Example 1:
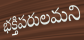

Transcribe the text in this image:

భక్తిపరులమని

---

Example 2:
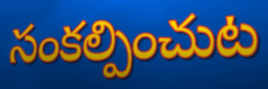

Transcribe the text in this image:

సంకల్పించుట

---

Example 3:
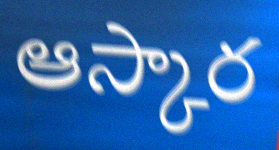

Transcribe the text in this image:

ఆస్కార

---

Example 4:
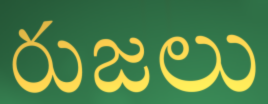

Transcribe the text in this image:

రుజలు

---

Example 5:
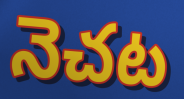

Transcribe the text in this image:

నెచట